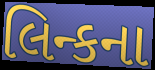
લિન્કના